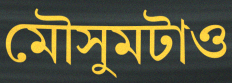
মৌসুমটাও